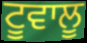
ਟੂਵਾਲੂ